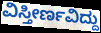
ವಿಸ್ತೀರ್ಣವಿದ್ದು